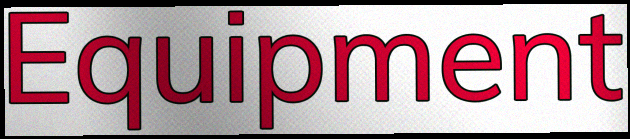
Equipment